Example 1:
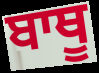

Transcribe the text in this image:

ਬਾਥੂ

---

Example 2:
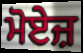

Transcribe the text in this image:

ਮੋਏਜ਼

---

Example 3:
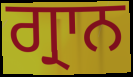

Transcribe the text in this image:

ਗ੍ਰਾਨ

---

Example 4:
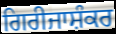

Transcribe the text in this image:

ਗਿਰੀਜਾਸ਼ੰਕਰ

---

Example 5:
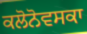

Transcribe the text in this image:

ਕਲੋਨੋਵਸਕਾ